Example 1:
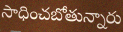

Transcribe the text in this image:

సాధించబోతున్నారు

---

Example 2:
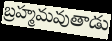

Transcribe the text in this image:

బ్రహ్మమవుతాడు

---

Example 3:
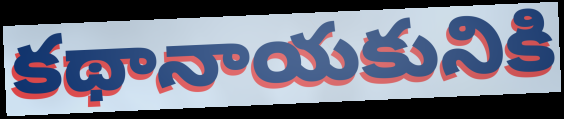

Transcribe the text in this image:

కథానాయకునికి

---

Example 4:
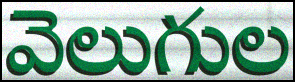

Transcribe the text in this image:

వెలుగుల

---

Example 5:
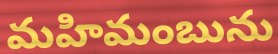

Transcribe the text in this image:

మహిమంబును